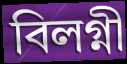
বিলগ্নী